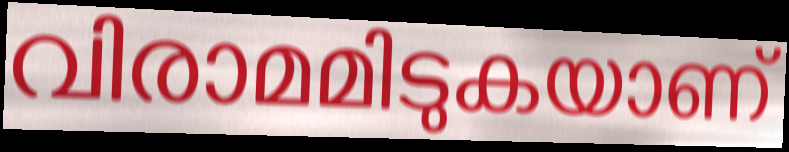
വിരാമമിടുകയാണ്